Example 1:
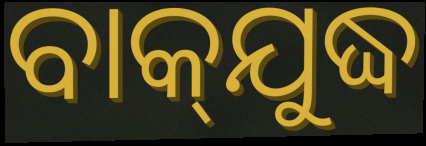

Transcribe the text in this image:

ବାକ୍‌ଯୁଦ୍ଧ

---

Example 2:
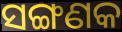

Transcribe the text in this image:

ସଙ୍ଗଣକ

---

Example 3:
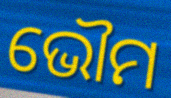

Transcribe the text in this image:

ଭୌମ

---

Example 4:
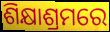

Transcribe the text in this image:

ଶିକ୍ଷାଶ୍ରମରେ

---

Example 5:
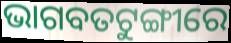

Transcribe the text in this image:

ଭାଗବତଟୁଙ୍ଗୀରେ